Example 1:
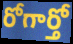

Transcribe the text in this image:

రోగార్తో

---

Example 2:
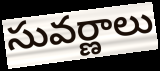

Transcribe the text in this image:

సువర్ణాలు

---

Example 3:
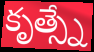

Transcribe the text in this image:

కృత్స్నే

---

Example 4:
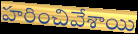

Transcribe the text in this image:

హరించివేశాయి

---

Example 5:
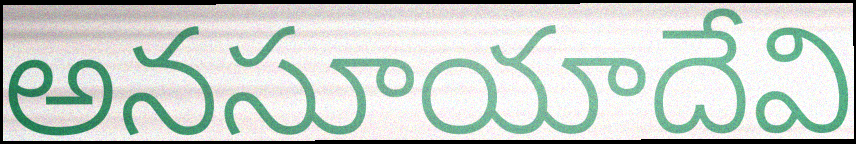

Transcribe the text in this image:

అనసూయాదేవి